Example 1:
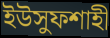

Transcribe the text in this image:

ইউসুফশাহী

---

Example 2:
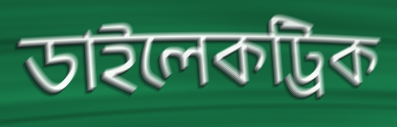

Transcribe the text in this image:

ডাইলেকট্রিক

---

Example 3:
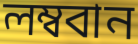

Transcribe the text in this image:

লম্ববান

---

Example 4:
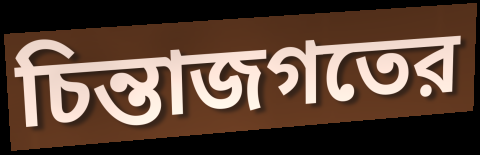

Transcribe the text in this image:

চিন্তাজগতের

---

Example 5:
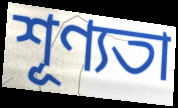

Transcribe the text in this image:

শূণ্যতা